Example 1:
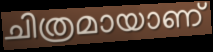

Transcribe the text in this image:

ചിത്രമായാണ്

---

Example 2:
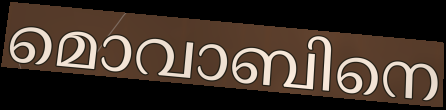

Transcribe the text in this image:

മൊവാബിനെ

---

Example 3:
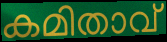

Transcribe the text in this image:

കമിതാവ്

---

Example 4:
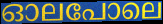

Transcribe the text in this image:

ഓലപോലെ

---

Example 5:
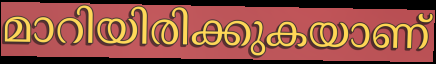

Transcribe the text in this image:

മാറിയിരിക്കുകയാണ്